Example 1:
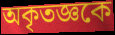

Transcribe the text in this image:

অকৃতজ্ঞকে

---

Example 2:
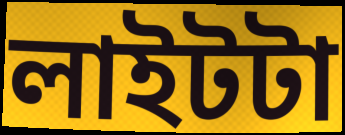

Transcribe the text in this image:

লাইটটা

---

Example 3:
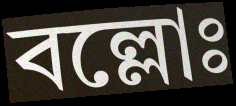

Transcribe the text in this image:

বল্লোঃ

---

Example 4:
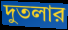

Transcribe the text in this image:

দুতলার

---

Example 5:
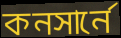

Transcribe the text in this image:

কনসার্নে